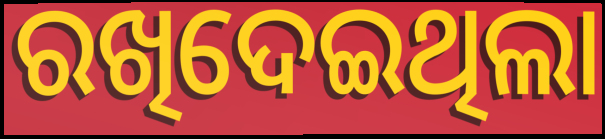
ରଖିଦେଇଥିଲା